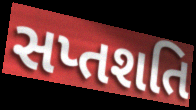
સપ્તશતિ